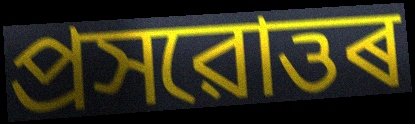
প্ৰসৱোত্তৰ